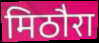
मिठौरा